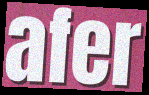
afer